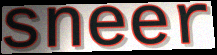
sneer